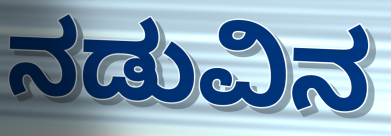
ನಡುವಿನ